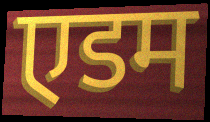
एडम